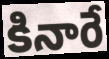
కినారే